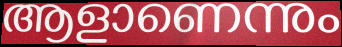
ആളാണെന്നും